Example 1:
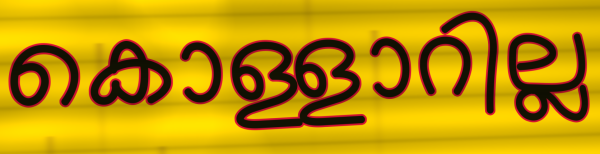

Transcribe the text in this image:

കൊള്ളാറില്ല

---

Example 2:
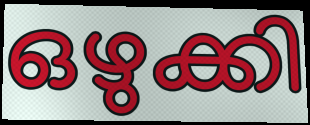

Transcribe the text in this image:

ഒഴുക്കി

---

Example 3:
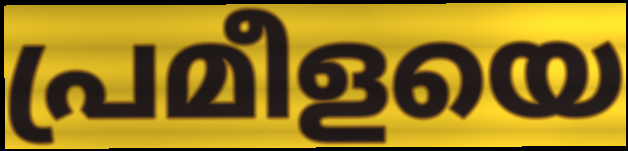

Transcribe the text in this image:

പ്രമീളയെ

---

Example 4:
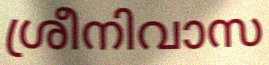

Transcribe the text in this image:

ശ്രീനിവാസ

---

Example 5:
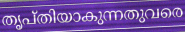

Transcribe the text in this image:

തൃപ്തിയാകുന്നതുവരെ